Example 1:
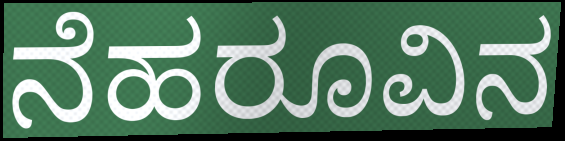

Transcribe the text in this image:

ನೆಹರೂವಿನ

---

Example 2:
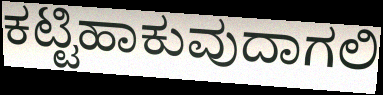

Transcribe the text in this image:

ಕಟ್ಟಿಹಾಕುವುದಾಗಲಿ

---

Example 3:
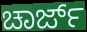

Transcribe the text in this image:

ಚಾರ್ಜ್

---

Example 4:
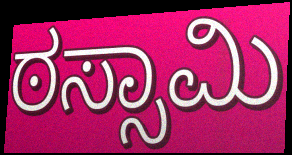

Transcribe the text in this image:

ಠಸ್ಸಾಮಿ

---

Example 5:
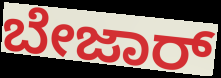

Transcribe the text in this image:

ಬೇಜಾರ್